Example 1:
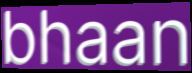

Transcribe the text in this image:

bhaan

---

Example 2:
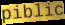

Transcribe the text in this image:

piblic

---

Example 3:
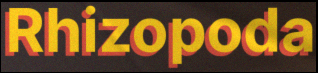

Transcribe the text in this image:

Rhizopoda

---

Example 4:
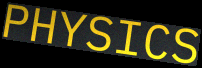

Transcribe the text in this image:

PHYSICS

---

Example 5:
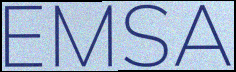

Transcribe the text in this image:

EMSA